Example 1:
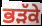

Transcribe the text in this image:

ਭੜੱਕੇ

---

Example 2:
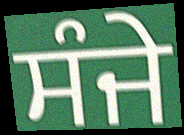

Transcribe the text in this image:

ਸੰਜੇ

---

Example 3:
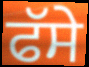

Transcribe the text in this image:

ਫੱਸੇ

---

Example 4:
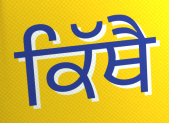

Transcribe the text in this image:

ਕਿੱਥੈ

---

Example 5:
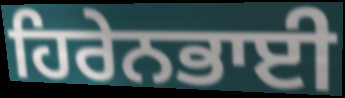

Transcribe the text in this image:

ਹਿਰੇਨਭਾਈ